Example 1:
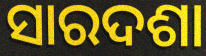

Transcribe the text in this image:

ସାରଦଶା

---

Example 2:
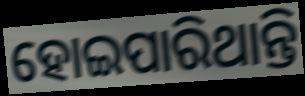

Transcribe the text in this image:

ହୋଇପାରିଥାନ୍ତି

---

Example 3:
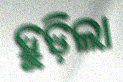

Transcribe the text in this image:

ହୁଡ଼ିଲା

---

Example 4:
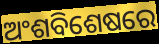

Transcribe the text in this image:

ଅଂଶବିଶେଷରେ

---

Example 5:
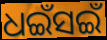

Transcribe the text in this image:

ଧଇଁସଇଁ